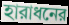
হারাধনের